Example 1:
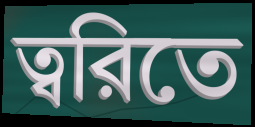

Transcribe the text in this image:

ত্বরিতে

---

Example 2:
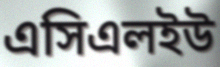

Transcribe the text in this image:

এসিএলইউ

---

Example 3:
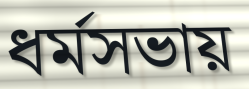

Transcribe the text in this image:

ধর্মসভায়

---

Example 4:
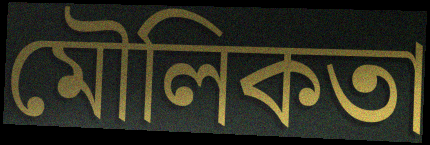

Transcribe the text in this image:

মৌলিকতা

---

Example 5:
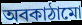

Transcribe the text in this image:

অবকাঠামো